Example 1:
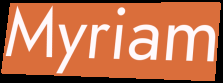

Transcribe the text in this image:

Myriam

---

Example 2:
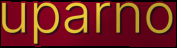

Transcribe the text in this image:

uparno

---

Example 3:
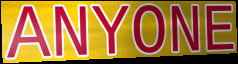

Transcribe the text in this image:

ANYONE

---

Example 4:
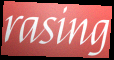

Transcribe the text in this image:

rasing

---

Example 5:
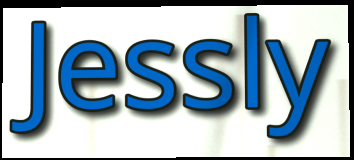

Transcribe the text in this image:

Jessly